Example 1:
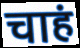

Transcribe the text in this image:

चाहं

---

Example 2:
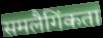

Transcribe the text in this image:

समलैगिंकता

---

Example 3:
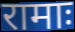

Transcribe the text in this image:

रामाः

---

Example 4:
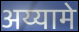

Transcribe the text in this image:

अय्यामे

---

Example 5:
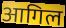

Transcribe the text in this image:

आगिल